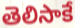
తెలిసాకే